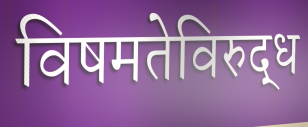
विषमतेविरुद्ध